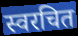
स्वरचित